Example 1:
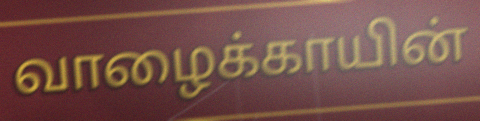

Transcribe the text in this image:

வாழைக்காயின்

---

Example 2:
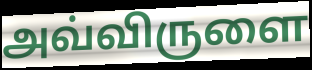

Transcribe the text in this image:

அவ்விருளை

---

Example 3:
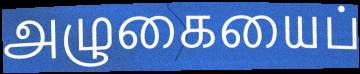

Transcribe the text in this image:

அழுகையைப்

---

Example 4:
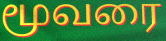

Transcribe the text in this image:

மூவரை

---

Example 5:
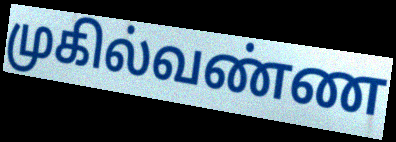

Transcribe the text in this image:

முகில்வண்ண